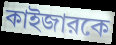
কাইজারকে